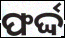
ଫର୍ଦ୍ଦ